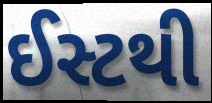
ઈસ્ટથી